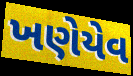
ખણેયેવ